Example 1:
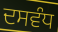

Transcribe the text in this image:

ਦਸਵੰਧ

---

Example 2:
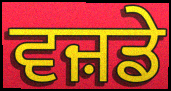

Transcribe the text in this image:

ਵਜ਼ਡੇ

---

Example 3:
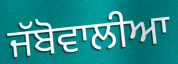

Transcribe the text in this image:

ਜੱਬੋਵਾਲੀਆ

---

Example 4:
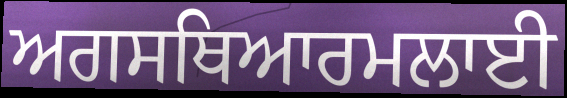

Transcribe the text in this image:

ਅਗਸਥਿਆਰਮਲਾਈ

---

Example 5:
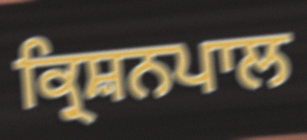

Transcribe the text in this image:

ਕ੍ਰਿਸ਼ਨਪਾਲ